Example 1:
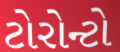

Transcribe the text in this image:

ટોરોન્ટો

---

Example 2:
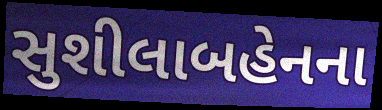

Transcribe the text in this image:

સુશીલાબહેનના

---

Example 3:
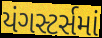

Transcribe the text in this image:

યંગસ્ટર્સમાં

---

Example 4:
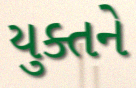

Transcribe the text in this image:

યુક્તને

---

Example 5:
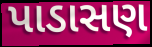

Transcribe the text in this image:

પાડાસણ